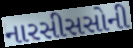
નારસીસસોની